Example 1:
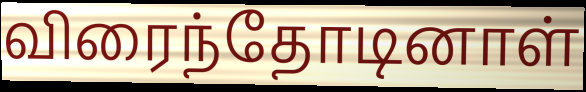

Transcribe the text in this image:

விரைந்தோடினாள்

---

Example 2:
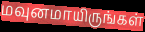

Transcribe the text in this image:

மவுனமாயிருங்கள்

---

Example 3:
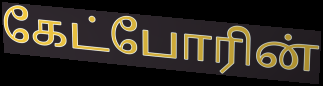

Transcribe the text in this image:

கேட்போரின்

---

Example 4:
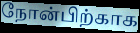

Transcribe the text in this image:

நோன்பிற்காக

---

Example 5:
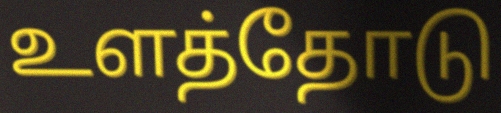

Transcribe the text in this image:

உளத்தோடு